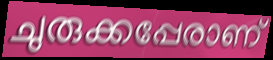
ചുരുക്കപ്പേരാണ്